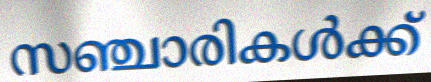
സഞ്ചാരികൾക്ക്